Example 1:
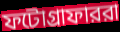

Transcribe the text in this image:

ফটোগ্রাফাররা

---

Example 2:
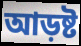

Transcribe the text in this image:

আড়ষ্ট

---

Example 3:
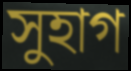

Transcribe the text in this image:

সুহাগ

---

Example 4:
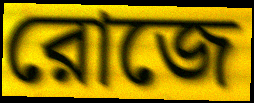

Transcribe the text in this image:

রোজে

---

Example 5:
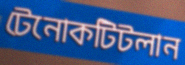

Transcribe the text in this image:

টেনোকটিটলান